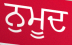
ਨੁਮੂਦ